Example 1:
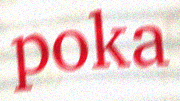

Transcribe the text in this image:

poka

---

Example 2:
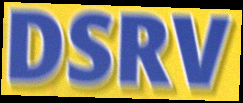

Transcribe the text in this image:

DSRV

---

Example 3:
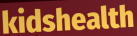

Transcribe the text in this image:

kidshealth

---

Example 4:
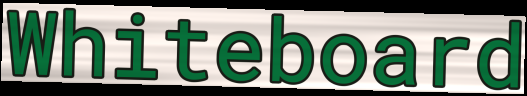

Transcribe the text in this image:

Whiteboard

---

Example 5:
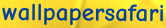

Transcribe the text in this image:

wallpapersafari